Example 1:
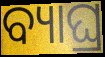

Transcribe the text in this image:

ବ୍ୟାଘ୍ର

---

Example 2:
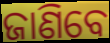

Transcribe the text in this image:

ଜାଣିବେ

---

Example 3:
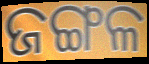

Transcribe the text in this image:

ଜଙ୍ଗଳ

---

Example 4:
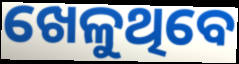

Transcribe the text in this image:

ଖେଳୁଥିବେ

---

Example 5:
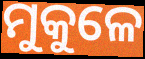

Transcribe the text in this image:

ମୁକୁଳେ